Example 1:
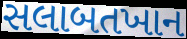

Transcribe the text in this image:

સલાબતખાન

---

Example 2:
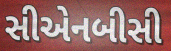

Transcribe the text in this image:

સીએનબીસી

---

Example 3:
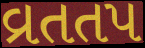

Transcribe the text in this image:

વ્રતતપ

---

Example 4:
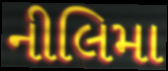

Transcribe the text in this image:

નીલિમા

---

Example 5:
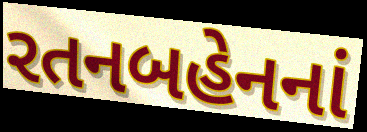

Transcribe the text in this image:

રતનબહેનનાં